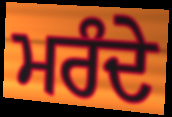
ਮਰੰਦੇ